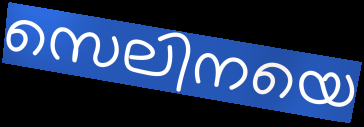
സെലിനയെ